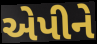
એપીને